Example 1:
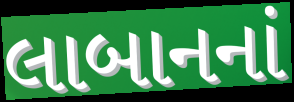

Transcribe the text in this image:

લાબાનનાં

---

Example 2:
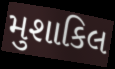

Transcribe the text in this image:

મુશાકિલ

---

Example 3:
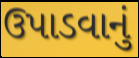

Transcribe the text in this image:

ઉપાડવાનું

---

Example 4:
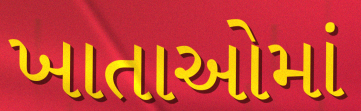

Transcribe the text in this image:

ખાતાઓમાં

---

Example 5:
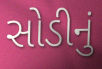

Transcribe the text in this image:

સોડીનું